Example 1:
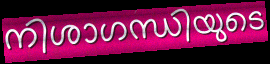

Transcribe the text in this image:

നിശാഗന്ധിയുടെ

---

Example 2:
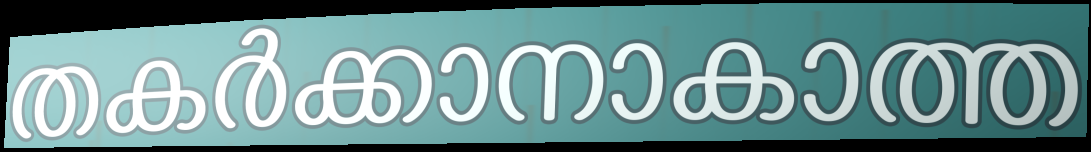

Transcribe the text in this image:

തകർക്കാനാകാത്ത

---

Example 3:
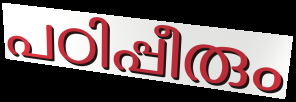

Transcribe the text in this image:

പഠിപ്പീരും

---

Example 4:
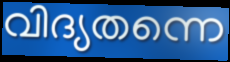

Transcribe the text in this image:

വിദ്യതന്നെ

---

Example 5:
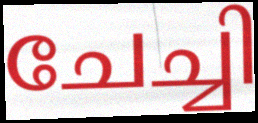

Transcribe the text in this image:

ചേച്ചി